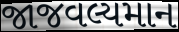
જાજવલ્યમાન